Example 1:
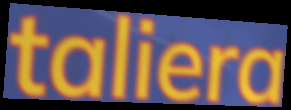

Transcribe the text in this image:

taliera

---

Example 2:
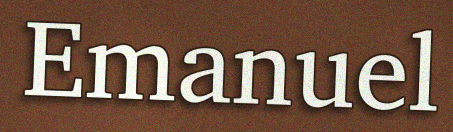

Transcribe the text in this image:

Emanuel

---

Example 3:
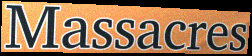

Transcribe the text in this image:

Massacres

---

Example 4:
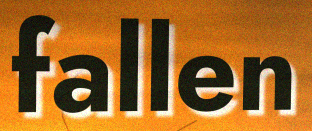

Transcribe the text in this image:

fallen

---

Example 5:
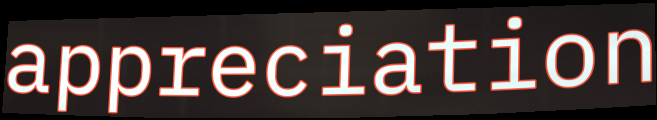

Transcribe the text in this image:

appreciation